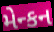
મેન્કન